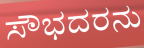
ಸೌಭದರನು